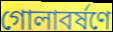
গোলাবর্ষণে